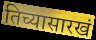
तिच्यासारखं